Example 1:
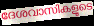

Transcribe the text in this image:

ദേശവാസികളുടെ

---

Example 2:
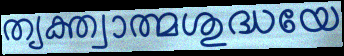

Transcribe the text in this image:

ത്യക്ത്വാത്മശുദ്ധയേ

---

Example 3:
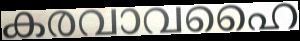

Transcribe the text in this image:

കരവാവഹൈ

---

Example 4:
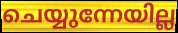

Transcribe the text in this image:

ചെയ്യുന്നേയില്ല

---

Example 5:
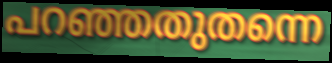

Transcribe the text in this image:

പറഞ്ഞതുതന്നെ